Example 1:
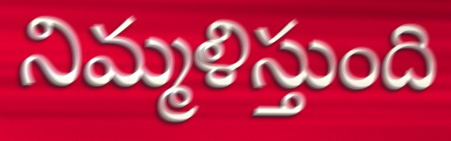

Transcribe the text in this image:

నిమ్మళిస్తుంది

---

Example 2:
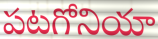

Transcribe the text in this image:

పటగోనియా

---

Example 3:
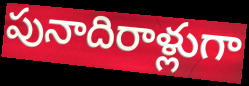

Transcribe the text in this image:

పునాదిరాళ్లుగా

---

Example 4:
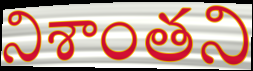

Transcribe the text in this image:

నిశాంతని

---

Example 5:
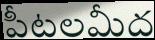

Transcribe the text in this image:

పీటలమీద